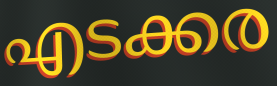
എടക്കര